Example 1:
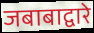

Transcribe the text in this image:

जबाबाद्वारे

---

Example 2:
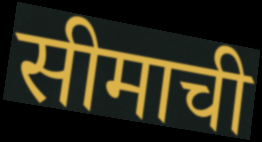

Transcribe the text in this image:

सीमाची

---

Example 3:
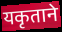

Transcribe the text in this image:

यकृताने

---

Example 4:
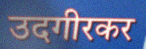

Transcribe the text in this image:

उदगीरकर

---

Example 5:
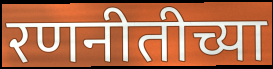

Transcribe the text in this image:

रणनीतीच्या